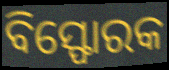
ବିସ୍ଫୋରକ